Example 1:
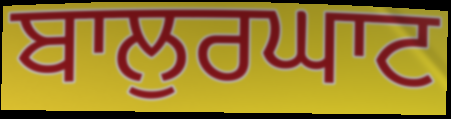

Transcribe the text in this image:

ਬਾਲੁਰਘਾਟ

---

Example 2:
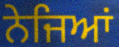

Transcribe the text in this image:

ਨੇਜਿਆਂ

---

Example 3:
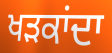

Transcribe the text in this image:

ਖੜਕਾਂਦਾ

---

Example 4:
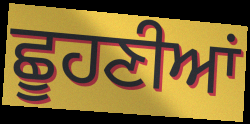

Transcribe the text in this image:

ਛੂਹਣੀਆਂ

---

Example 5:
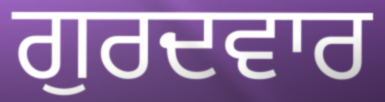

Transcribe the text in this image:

ਗੁਰਦਵਾਰ